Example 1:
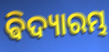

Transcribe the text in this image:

ଵିଦ୍ୟାରମ୍ଭ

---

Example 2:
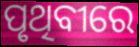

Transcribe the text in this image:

ପୃଥିବୀରେ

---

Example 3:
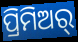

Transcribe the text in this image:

ପ୍ରିମିଅର୍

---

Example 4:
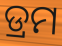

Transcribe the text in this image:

ଡ୍ରମ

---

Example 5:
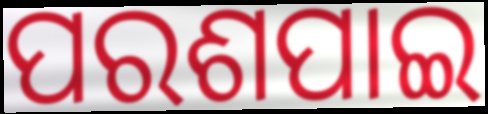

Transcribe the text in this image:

ପରଶପାଇ